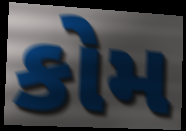
કોમ